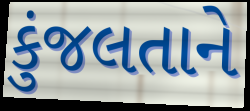
કુંજલતાને